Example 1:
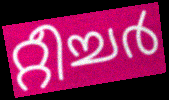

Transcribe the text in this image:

റ്റീച്ചർ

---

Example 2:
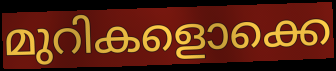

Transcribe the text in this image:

മുറികളൊക്കെ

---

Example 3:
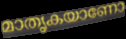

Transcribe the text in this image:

മാതൃകയാണോ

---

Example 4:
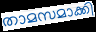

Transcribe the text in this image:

താമസമാക്കി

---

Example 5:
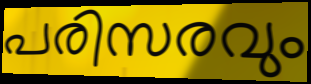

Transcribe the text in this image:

പരിസരവും